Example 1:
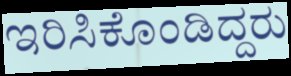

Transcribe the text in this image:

ಇರಿಸಿಕೊಂಡಿದ್ದರು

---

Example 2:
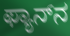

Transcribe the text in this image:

ಫ್ಯಾನ್‌ನ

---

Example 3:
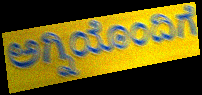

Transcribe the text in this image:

ಅಗ್ನಿಯೊಂದಿಗೆ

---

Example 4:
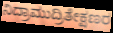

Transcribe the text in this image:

ನಿದ್ರಾಮುದ್ರಿತೇಕ್ಷಣರ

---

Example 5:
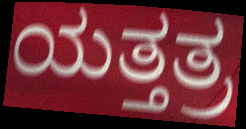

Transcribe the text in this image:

ಯತ್ತತ್ರ